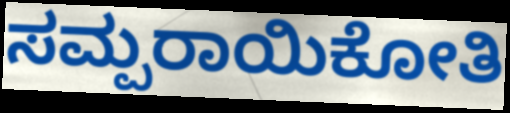
ಸಮ್ಪರಾಯಿಕೋತಿ